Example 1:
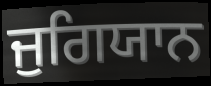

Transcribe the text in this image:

ਜੁਗਿਯਾਨ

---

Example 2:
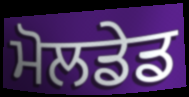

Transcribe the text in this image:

ਮੋਲਡੇਡ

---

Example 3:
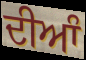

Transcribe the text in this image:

ਦੀਆੰ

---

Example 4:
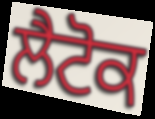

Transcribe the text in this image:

ਲੈਟੋਕ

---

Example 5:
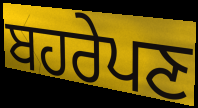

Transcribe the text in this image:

ਬਹਰੇਪਣ